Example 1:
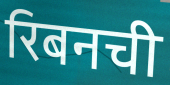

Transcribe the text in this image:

रिबनची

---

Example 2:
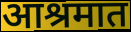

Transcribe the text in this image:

आश्रमात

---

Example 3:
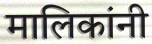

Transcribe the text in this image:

मालिकांनी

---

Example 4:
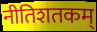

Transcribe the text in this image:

नीतिशतकम्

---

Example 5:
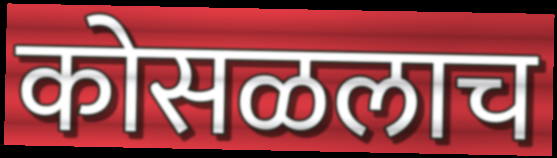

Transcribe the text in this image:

कोसळलाच